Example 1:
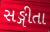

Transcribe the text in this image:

સઙ્ગીતા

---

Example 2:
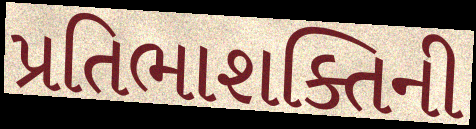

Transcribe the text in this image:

પ્રતિભાશક્તિની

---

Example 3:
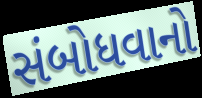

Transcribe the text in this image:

સંબોધવાનો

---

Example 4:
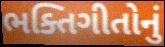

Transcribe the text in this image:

ભક્તિગીતોનું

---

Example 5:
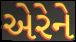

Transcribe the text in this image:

એરેને